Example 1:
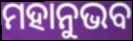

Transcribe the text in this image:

ମହାନୁଭବ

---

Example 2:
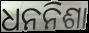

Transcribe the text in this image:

ଧନନିଶା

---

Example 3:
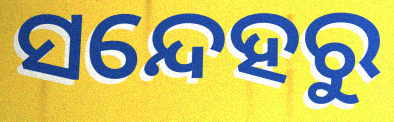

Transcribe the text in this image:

ସନ୍ଦେହରୁ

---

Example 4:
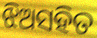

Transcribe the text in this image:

ଝିଅସହିତ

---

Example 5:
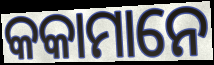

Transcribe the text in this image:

କକାମାନେ